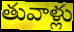
తువాళ్లు